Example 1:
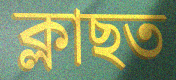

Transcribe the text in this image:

ক্লাছত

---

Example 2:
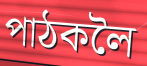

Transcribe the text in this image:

পাঠকলৈ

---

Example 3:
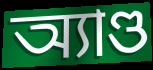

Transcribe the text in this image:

অ্যাণ্ড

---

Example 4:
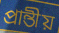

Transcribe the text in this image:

প্ৰান্তীয়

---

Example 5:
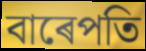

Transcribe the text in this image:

বাৰেপতি